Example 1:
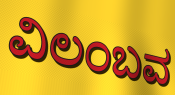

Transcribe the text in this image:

ವಿಲಂಬವ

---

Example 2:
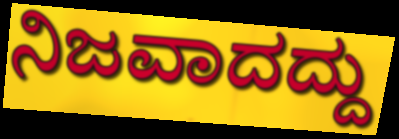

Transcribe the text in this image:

ನಿಜವಾದದ್ದು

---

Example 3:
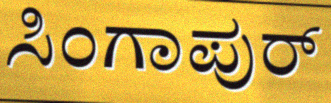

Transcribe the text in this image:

ಸಿಂಗಾಪುರ್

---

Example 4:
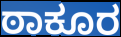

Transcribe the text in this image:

ಠಾಕೂರ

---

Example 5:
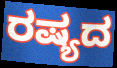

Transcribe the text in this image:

ರಷ್ಯದ